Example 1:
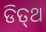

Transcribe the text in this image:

ଡିତ୍‍ଥ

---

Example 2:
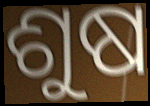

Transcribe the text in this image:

ଶୁଷ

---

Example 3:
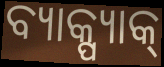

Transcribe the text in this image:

ବ୍ୟାକ୍ପ୍ୟାକ୍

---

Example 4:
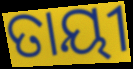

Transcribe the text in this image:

ତାୟୀ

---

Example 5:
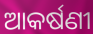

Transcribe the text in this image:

ଆକର୍ଷଣୀ